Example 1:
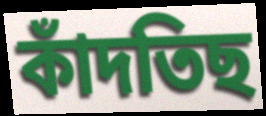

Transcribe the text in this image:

কাঁদতিছ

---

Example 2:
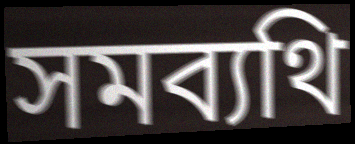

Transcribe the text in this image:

সমব্যথি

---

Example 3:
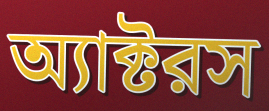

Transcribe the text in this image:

অ্যাক্টরস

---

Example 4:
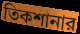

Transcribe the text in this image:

তিকশানার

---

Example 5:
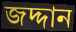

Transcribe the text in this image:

জদ্দান